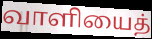
வாளியைத்